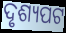
ଦୃଶ୍ୟପଟ